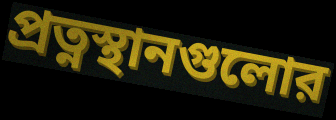
প্রত্নস্থানগুলোর